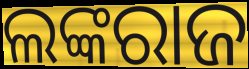
ଲଙ୍କରାଜ